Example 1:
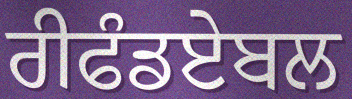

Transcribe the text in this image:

ਰੀਫੰਡਏਬਲ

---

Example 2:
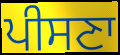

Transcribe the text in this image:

ਪੀਸਣਾ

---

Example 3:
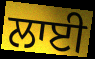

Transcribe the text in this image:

ਲਾਈ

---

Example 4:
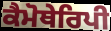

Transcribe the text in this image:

ਕੈਮੋਥੇਰਿਪੀ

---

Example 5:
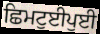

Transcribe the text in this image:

ਛਿਮਟੁਈਪੁਈ